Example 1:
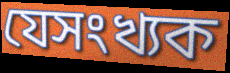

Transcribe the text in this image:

যেসংখ্যক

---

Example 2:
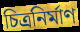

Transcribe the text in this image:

চিত্রনির্মাণ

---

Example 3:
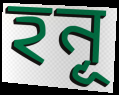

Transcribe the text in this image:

হনূ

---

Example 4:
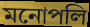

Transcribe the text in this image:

মনোপলি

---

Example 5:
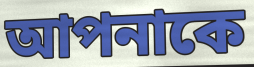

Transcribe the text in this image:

আপনাকে